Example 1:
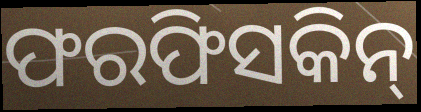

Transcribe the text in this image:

ଫରଫିସକିନ୍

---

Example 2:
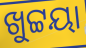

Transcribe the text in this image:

ଖୁଟ୍ଟୟା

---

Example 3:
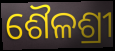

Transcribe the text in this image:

ଶୈଳଶ୍ରୀ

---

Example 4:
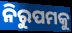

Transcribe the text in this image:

ନିରୁପମକୁ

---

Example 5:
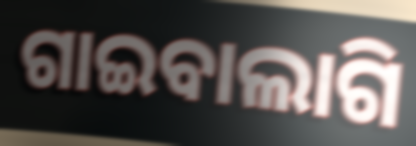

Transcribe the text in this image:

ଗାଇବାଲାଗି